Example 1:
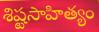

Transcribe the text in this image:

శిష్టసాహిత్యం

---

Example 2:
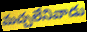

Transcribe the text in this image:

మచ్చలేనివాడు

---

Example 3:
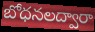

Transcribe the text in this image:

బోధనలద్వారా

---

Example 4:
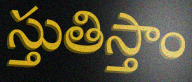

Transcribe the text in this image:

స్తుతిస్తాం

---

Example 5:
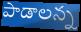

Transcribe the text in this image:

పాడాలన్న